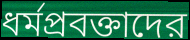
ধর্মপ্রবক্তাদের